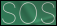
SOS